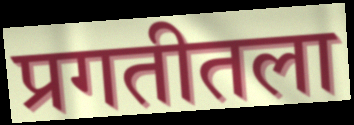
प्रगतीतला